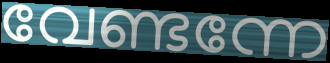
വേണ്ടന്നേ